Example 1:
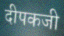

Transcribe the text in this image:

दीपकजी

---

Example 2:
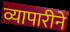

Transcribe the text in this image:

व्यापारीने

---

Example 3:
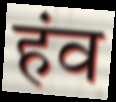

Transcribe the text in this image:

हंव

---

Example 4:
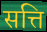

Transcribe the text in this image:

सत्ति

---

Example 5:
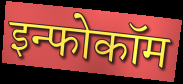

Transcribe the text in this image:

इन्फोकॉम